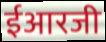
ईआरजी